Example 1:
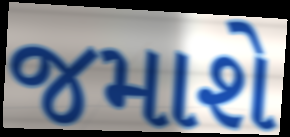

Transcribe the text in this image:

જમાશે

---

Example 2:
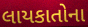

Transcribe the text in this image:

લાયકાતોના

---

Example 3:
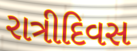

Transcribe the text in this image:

રાત્રીદિવસ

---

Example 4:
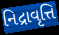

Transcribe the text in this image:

નિદ્રાવૃત્તિ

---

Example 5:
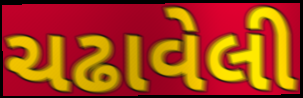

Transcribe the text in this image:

ચઢાવેલી